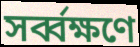
সর্ব্বক্ষণে